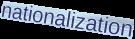
nationalization